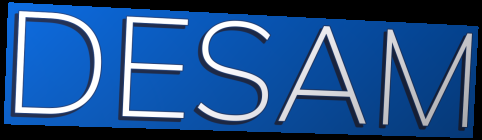
DESAM